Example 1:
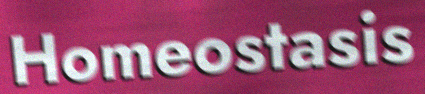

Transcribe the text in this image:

Homeostasis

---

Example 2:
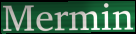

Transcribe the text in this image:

Mermin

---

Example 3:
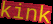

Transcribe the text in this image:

kink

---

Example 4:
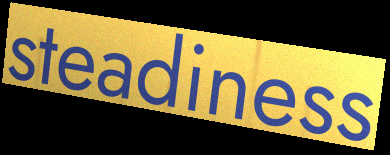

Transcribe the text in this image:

steadiness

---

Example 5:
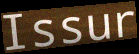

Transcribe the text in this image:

Issur